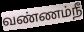
வண்ணம்நீ